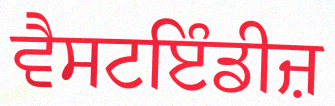
ਵੈਸਟਇੰਡੀਜ਼